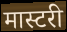
मास्टरी